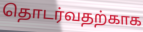
தொடர்வதற்காக